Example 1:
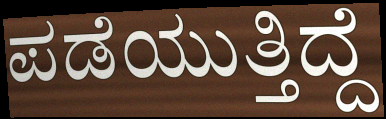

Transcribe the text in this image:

ಪಡೆಯುತ್ತಿದ್ದೆ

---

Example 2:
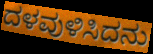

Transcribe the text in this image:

ದಳವುಳಿಸಿದನು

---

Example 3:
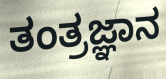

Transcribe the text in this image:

ತಂತ್ರಜ್ಞಾನ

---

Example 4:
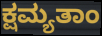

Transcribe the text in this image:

ಕ್ಷಮ್ಯತಾಂ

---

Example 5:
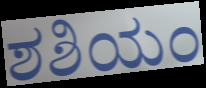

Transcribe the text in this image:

ಶಶಿಯಂ